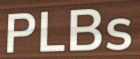
PLBs